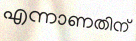
എന്നാണതിന്